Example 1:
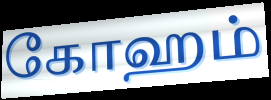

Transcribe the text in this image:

கோஹம்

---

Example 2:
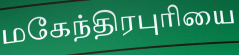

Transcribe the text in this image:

மகேந்திரபுரியை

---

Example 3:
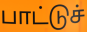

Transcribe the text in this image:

பாட்டுச்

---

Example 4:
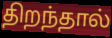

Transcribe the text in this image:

திறந்தால்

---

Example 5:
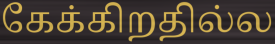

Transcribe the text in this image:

கேக்கிறதில்ல